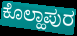
ಕೊಲ್ಹಾಪುರ